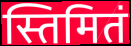
स्तिमितं